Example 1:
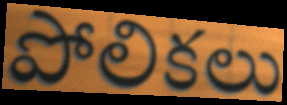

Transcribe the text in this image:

పోలికలు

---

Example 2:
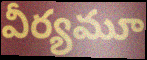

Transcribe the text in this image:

వీర్యమూ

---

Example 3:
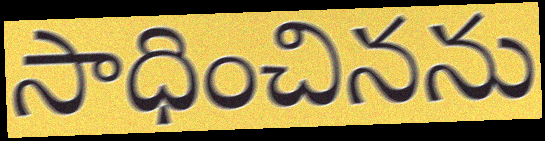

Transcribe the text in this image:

సాధించినను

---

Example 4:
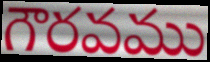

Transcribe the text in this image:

గౌరవము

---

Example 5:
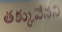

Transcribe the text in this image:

తక్కువేనని